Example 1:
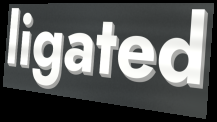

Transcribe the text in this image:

ligated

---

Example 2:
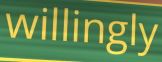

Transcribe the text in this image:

willingly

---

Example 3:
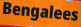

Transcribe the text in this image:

Bengalees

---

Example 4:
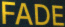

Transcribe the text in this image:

FADE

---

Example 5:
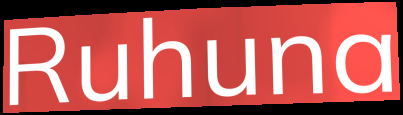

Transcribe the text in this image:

Ruhuna